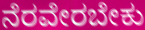
ನೆರವೇರಬೇಕು